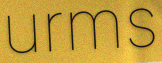
urms